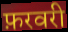
फ़रवरी